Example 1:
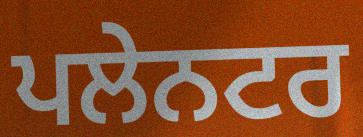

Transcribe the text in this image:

ਪਲੇਨਟਰ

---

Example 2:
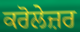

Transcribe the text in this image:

ਕਰੋਲੇਜ਼ਰ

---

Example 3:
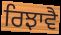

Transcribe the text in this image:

ਰਿਝਾਵੈ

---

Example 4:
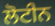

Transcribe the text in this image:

ਲੋਟੀਨ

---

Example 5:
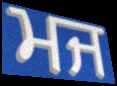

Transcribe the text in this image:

ਮਜ